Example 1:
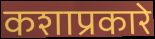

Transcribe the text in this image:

कशाप्रकारे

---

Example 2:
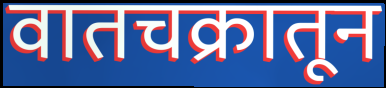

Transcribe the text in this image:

वातचक्रातून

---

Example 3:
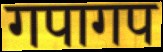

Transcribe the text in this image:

गपागप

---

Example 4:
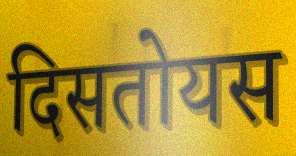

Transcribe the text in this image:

दिसतोयस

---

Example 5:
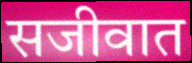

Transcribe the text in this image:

सजीवात